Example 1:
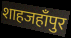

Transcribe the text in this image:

शाहजहाँपुर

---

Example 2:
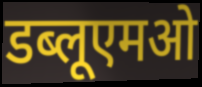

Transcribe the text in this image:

डब्लूएमओ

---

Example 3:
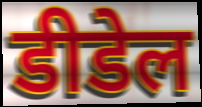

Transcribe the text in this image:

डीडेल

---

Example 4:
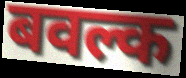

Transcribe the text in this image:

बवल्क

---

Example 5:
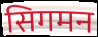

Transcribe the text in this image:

सिगमन